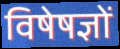
विषेषज्ञों